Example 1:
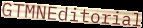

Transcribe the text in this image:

GTMNEditorial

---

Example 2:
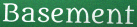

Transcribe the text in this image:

Basement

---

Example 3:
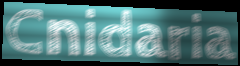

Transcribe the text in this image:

Cnidaria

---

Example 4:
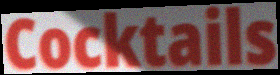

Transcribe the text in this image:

Cocktails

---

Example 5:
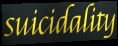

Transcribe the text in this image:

suicidality